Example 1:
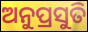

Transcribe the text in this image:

ଅନୁପ୍ରସୁତି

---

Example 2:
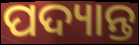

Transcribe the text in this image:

ପଦ୍ୟାନ୍ତ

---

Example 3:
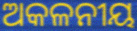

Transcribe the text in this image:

ଅକଳନୀୟ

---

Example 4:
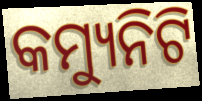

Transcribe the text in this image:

କମ୍ୟୁନିଟି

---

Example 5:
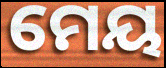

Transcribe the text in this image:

ମେୟ